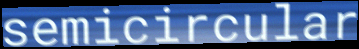
semicircular